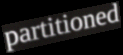
partitioned